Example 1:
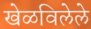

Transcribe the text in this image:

खेळविलेले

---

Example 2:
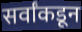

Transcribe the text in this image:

सर्वांकडून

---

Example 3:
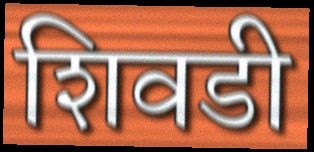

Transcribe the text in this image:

शिवडी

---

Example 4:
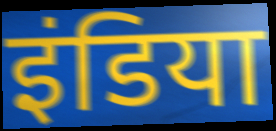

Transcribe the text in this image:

इंडिया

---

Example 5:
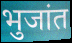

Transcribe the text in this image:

भुजांत